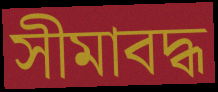
সীমাবদ্ধ